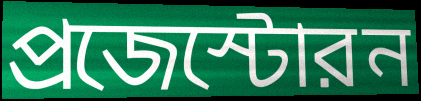
প্রজেস্টোরন